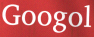
Googol